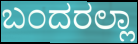
ಬಂದರಲ್ಲಾ